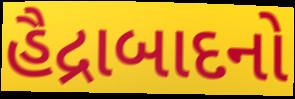
હૈદ્રાબાદનો